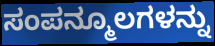
ಸಂಪನ್ಮೂಲಗಳನ್ನು